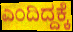
ಎಂದಿದ್ದಕ್ಕೆ